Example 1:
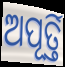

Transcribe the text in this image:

ଅପୂର୍ତ୍ତି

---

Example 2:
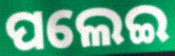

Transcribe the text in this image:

ପଲେଇ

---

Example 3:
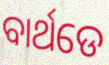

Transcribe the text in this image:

ବାର୍ଥଡେ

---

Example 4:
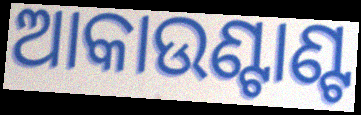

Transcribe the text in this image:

ଆକାଉଣ୍ଟାଣ୍ଟ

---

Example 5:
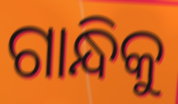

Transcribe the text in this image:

ଗାନ୍ଧିକୁ